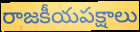
రాజకీయపక్షాలు